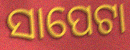
ସାପେଟା